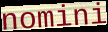
nomini